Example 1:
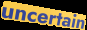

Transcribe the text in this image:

uncertain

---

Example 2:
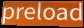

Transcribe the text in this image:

preload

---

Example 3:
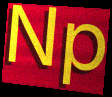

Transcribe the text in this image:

Np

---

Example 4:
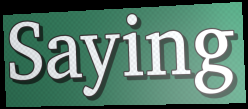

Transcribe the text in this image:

Saying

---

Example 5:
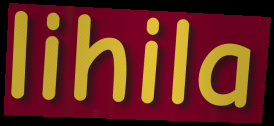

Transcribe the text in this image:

lihila